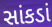
સાંકડાં